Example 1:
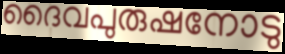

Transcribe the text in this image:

ദൈവപുരുഷനോടു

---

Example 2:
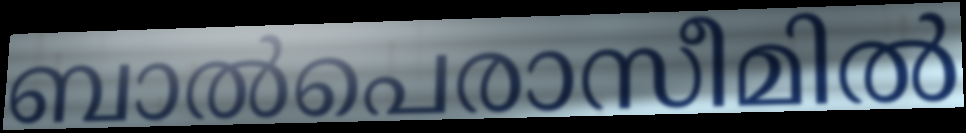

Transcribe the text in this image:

ബാൽപെരാസീമിൽ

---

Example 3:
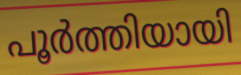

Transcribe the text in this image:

പൂർത്തിയായി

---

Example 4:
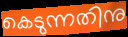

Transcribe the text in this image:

കെടുന്നതിനു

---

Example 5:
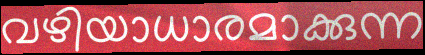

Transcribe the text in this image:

വഴിയാധാരമാക്കുന്ന